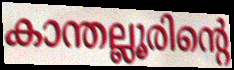
കാന്തല്ലൂരിന്റെ